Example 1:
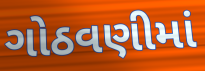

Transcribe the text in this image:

ગોઠવણીમાં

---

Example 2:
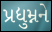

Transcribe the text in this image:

પ્રદ્યુમ્નને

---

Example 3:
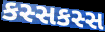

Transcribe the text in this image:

કસ્સકસ્સ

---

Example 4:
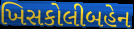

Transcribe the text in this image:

ખિસકોલીબહેન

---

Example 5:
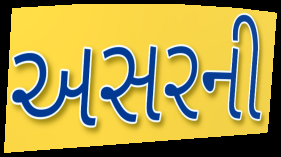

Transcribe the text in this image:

અસરની